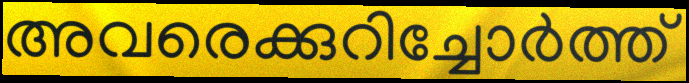
അവരെക്കുറിച്ചോർത്ത്